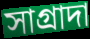
সাগ্রাদা